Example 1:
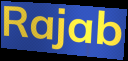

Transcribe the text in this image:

Rajab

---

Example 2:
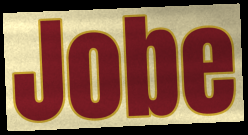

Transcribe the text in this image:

Jobe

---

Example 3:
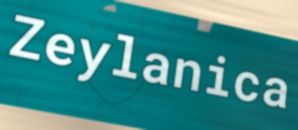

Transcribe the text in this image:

Zeylanica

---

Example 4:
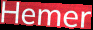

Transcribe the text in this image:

Hemer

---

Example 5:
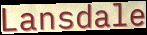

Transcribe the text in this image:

Lansdale